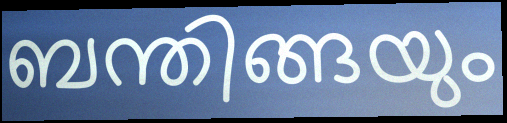
ബന്തിങ്ങയും